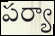
పర్యా